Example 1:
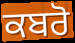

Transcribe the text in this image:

ਕਬਰੋ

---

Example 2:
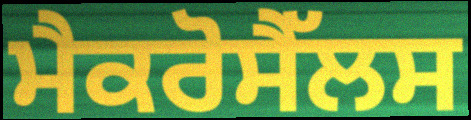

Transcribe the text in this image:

ਮੈਕਰੋਸੈੱਲਸ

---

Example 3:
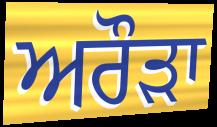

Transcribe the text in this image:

ਅਰੌੜਾ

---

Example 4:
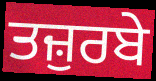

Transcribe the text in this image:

ਤਜ਼ੁਰਬੇ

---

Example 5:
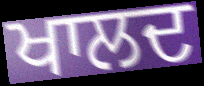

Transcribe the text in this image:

ਖਾਲਦ